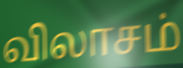
விலாசம்